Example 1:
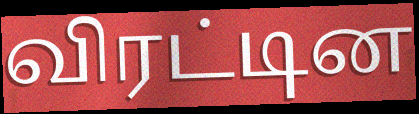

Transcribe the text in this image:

விரட்டின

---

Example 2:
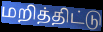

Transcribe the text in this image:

மறித்திட்டு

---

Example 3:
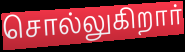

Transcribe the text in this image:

சொல்லுகிறார்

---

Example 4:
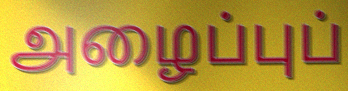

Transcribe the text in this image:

அழைப்புப்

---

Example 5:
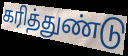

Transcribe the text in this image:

கரித்துண்டு